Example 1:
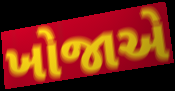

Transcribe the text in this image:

ખોજાએ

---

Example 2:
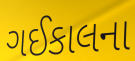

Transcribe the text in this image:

ગઈકાલના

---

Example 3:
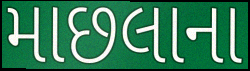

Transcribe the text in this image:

માછલાના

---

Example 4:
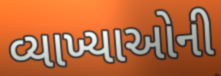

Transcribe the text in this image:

વ્યાખ્યાઓની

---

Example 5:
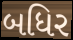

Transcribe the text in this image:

બધિર